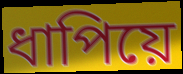
ধাপিয়ে